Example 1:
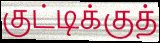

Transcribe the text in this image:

குட்டிக்குத்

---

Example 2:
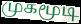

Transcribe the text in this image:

முகமூடி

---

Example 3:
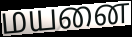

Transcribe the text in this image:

மயனை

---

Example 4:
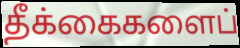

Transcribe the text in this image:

தீக்கைகளைப்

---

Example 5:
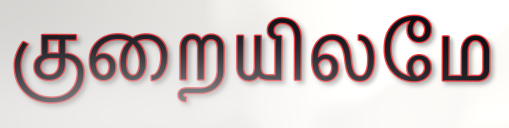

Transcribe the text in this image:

குறையிலமே